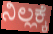
ನಿಲ್ಲಕ್ಕೆ